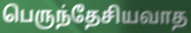
பெருந்தேசியவாத